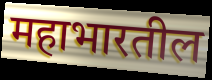
महाभारतील